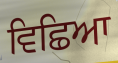
ਵਿਛਿਆ